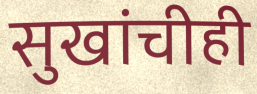
सुखांचीही